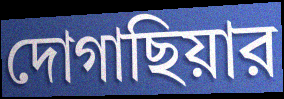
দোগাছিয়ার